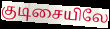
குடிசையிலே